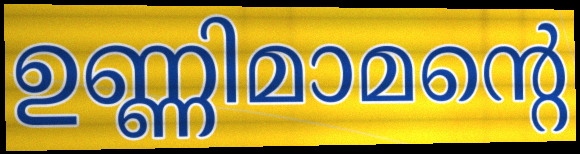
ഉണ്ണിമാമന്റെ